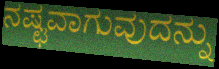
ನಷ್ಟವಾಗುವುದನ್ನು